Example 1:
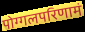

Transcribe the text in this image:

पोग्गलपरिणामं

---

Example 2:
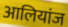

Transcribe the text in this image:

आलियांज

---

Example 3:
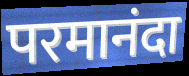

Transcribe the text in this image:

परमानंदा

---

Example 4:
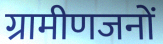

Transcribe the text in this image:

ग्रामीणजनों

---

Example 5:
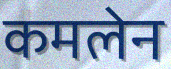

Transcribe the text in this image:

कमलेन